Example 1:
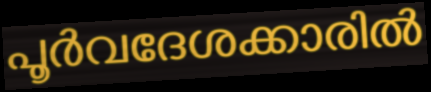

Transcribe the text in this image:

പൂർവദേശക്കാരിൽ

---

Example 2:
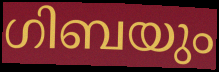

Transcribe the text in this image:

ഗിബയും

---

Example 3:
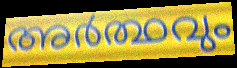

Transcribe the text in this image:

അർത്ഥവും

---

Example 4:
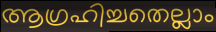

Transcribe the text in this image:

ആഗ്രഹിച്ചതെല്ലാം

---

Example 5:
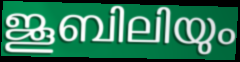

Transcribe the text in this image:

ജൂബിലിയും